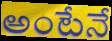
అంటేనే